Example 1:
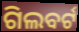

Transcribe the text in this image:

ଗିଲବର୍ଟ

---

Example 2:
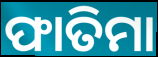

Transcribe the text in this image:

ଫାତିମା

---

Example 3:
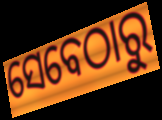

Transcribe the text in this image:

ସେବେଠାରୁ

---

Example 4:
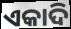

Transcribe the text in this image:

ଏକାଦି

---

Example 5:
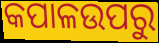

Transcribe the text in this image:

କପାଳଉପରୁ